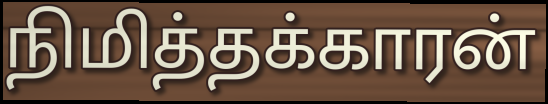
நிமித்தக்காரன்